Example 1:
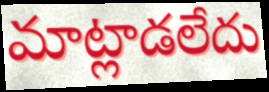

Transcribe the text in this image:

మాట్లాడలేదు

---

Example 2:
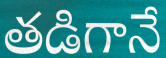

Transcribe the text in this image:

తడిగానే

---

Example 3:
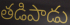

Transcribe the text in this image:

తడిపాడు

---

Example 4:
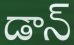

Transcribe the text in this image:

డాన్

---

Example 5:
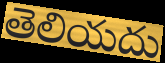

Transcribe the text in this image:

తెలియదు